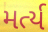
મર્ત્ય